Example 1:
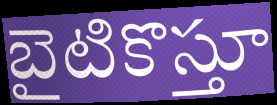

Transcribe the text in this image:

బైటికొస్తూ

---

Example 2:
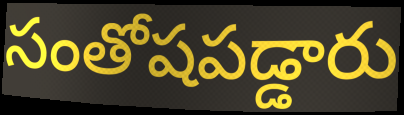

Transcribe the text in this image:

సంతోషపడ్డారు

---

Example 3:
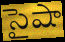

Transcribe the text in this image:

సైషా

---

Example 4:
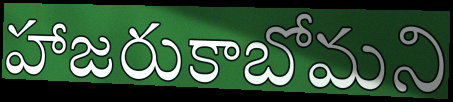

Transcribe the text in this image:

హాజరుకాబోమని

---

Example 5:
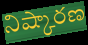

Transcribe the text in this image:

నిష్కారణ